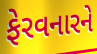
ફેરવનારને